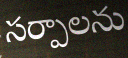
సర్పాలను